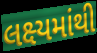
લક્ષ્યમાંથી